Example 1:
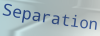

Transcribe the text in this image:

Separation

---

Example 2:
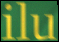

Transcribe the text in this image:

ilu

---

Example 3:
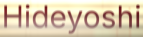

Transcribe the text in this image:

Hideyoshi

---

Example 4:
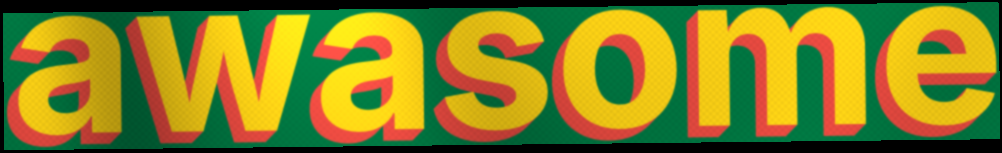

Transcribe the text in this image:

awasome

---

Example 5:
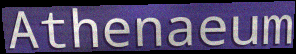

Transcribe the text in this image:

Athenaeum